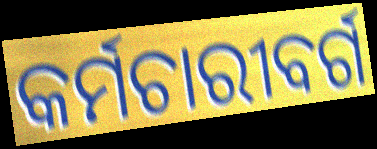
କର୍ମଚାରୀବର୍ଗ